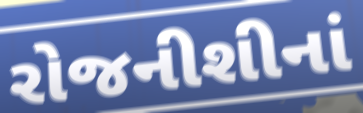
રોજનીશીનાં